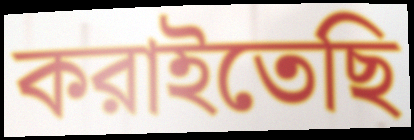
করাইতেছি